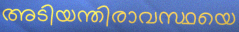
അടിയന്തിരാവസ്ഥയെ